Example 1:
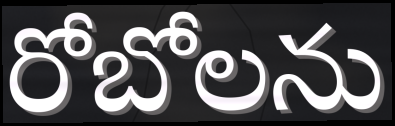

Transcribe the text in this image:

రోబోలను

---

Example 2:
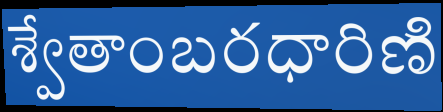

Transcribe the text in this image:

శ్వేతాంబరధారిణి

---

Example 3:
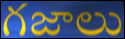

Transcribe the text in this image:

గజాలు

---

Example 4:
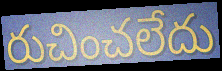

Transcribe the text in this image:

రుచించలేదు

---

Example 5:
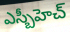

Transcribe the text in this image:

ఎస్బీహెచ్